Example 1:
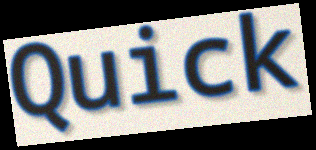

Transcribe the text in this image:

Quick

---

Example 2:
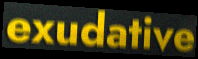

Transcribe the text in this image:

exudative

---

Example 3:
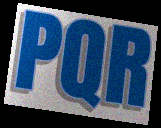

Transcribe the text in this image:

PQR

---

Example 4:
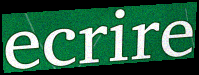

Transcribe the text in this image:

ecrire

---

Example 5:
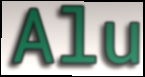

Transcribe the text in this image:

Alu